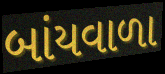
બાંયવાળા